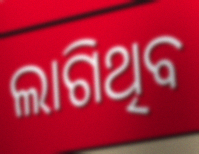
ଲାଗିଥିବ